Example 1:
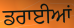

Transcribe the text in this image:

ਡਰਾਈਆਂ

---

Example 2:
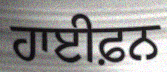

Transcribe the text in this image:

ਹਾਈਫ਼ਨ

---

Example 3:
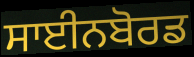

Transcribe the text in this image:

ਸਾਈਨਬੋਰਡ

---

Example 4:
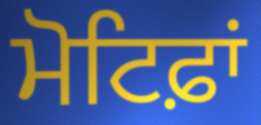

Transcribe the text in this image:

ਮੋਟਿਫ਼ਾਂ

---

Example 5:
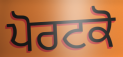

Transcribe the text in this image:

ਪੋਰਟਕੋ